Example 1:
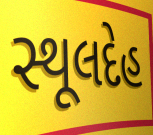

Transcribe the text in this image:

સ્થૂલદેહ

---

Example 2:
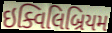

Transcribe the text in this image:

ઇક્વિલિબ્રિયમ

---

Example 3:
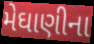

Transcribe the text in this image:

મેઘાણીના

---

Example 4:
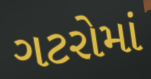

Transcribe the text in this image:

ગટરોમાં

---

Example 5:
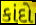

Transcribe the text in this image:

કાંદો